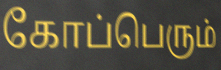
கோப்பெரும்